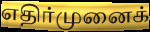
எதிர்முனைக்